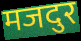
मजदुर